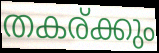
തകര്ക്കും